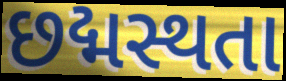
છદ્મસ્થતા